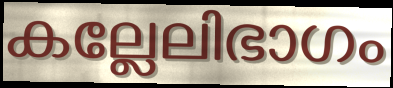
കല്ലേലിഭാഗം